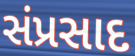
સંપ્રસાદ